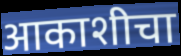
आकाशीचा